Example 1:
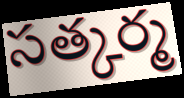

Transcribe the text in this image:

సత్కర్మ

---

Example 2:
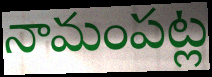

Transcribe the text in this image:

నామంపట్ల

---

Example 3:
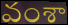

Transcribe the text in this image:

వంశా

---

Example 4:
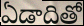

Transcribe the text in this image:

ఏడాదితో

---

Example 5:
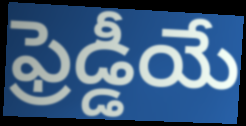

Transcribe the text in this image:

ఫ్రెడ్డీయే